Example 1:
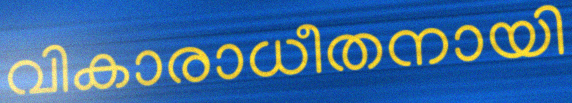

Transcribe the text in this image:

വികാരാധീതനായി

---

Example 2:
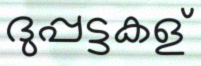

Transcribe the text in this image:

ദുപ്പട്ടകള്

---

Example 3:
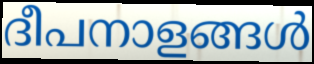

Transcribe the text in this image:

ദീപനാളങ്ങൾ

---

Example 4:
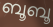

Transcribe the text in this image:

ബൂബൂ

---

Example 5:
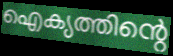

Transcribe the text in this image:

ഐക്യത്തിന്റെ